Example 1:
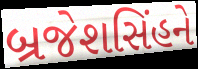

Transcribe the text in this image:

બ્રજેશસિંહને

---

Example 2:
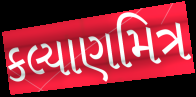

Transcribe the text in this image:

કલ્યાણમિત્ર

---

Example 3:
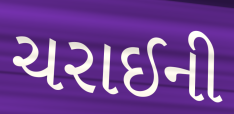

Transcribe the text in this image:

ચરાઈની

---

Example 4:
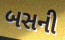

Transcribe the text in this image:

બસની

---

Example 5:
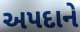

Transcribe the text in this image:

અપદાને